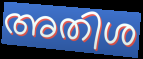
അതിശ